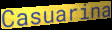
Casuarina